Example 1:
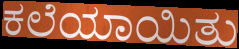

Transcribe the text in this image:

ಕಲೆಯಾಯಿತು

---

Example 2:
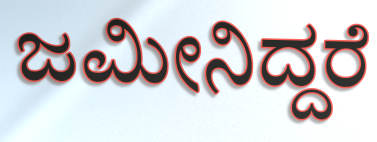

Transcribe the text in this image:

ಜಮೀನಿದ್ದರೆ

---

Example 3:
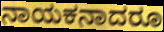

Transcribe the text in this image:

ನಾಯಕನಾದರೂ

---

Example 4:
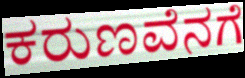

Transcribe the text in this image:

ಕರುಣವೆನಗೆ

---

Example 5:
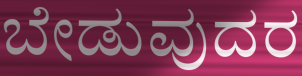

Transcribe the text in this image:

ಬೇಡುವುದರ